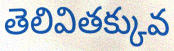
తెలివితక్కువ